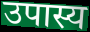
उपास्य